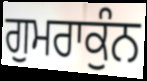
ਗੁਮਰਾਕੁੰਨ